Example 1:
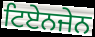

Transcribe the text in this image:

ਟਿਏਨਜੇਨ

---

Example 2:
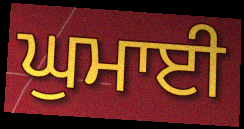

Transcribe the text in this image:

ਘੁਮਾਈ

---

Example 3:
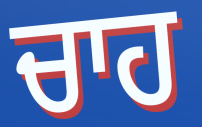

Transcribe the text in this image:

ਚਾਹ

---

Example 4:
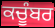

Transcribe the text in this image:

ਕਚੂੰਬਰ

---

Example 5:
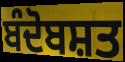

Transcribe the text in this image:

ਬੰਦੋਬਸ਼ਤ